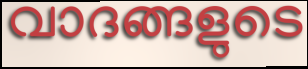
വാദങ്ങളുടെ